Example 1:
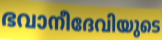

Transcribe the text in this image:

ഭവാനീദേവിയുടെ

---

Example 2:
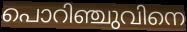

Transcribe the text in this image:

പൊറിഞ്ചുവിനെ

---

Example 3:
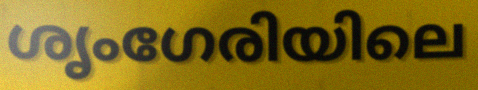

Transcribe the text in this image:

ശൃംഗേരിയിലെ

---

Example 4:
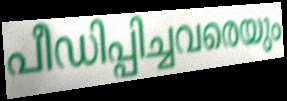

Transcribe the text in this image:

പീഡിപ്പിച്ചവരെയും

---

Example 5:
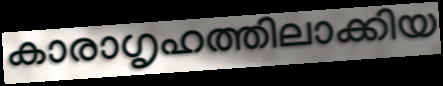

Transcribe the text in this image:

കാരാഗൃഹത്തിലാക്കിയ